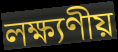
লক্ষ্যণীয়